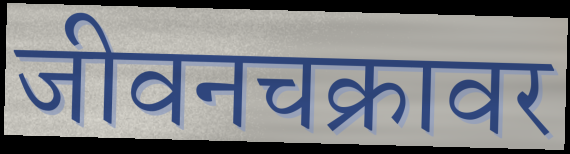
जीवनचक्रावर